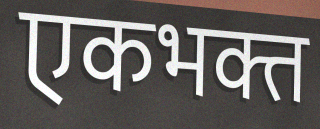
एकभक्त